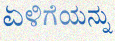
ಏಳಿಗೆಯನ್ನು